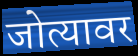
जोत्यावर